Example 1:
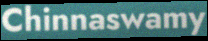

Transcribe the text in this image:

Chinnaswamy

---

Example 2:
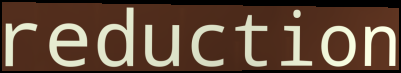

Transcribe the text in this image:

reduction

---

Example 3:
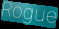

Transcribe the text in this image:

Rogue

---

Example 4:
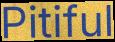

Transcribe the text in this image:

Pitiful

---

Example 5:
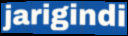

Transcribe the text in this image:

jarigindi